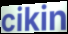
cikin